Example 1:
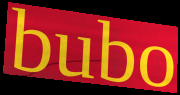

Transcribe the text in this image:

bubo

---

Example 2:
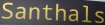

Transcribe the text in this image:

Santhals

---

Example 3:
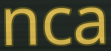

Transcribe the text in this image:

nca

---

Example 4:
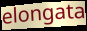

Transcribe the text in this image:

elongata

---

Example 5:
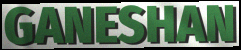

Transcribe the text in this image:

GANESHAN